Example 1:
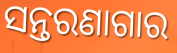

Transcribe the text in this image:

ସନ୍ତରଣାଗାର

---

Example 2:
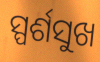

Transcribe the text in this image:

ସ୍ପର୍ଶସୁଖ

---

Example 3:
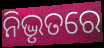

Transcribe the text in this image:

ନିଦ୍ଭୃତରେ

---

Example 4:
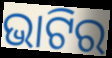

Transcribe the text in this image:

ଭାଟିର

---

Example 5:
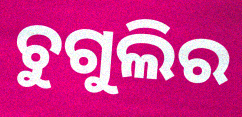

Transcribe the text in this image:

ଚୁଗୁଲିର